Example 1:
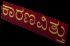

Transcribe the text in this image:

ಕಾರಣವಿತ್ತು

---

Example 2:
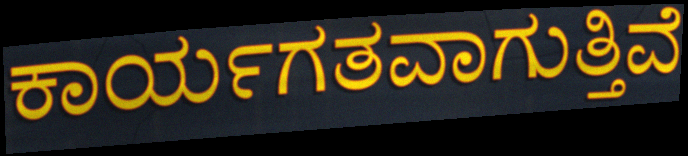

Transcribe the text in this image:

ಕಾರ್ಯಗತವಾಗುತ್ತಿವೆ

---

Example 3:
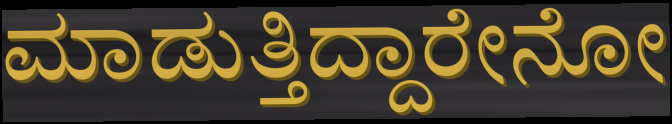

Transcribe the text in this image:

ಮಾಡುತ್ತಿದ್ದಾರೇನೋ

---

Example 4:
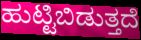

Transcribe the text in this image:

ಹುಟ್ಟಿಬಿಡುತ್ತದೆ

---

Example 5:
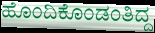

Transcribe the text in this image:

ಹೊಂದಿಕೊಂಡಂತಿದ್ದ